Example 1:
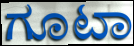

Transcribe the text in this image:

ಗೂಟಾ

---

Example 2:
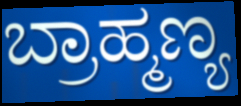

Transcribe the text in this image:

ಬ್ರಾಹ್ಮಣ್ಯ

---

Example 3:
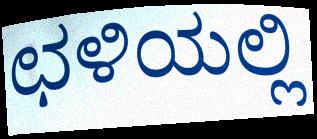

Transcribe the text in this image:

ಛಳಿಯಲ್ಲಿ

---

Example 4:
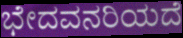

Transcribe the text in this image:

ಭೇದವನರಿಯದೆ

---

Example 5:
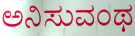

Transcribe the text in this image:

ಅನಿಸುವಂಥ